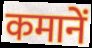
कमानें